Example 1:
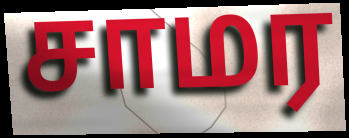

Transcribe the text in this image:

சாமர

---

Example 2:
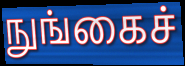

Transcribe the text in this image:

நுங்கைச்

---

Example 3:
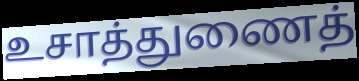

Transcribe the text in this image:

உசாத்துணைத்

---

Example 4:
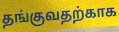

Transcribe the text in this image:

தங்குவதற்காக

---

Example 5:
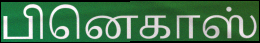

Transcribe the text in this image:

பினெகாஸ்